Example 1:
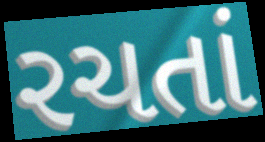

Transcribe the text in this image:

રચતાં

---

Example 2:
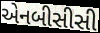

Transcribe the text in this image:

એનબીસીસી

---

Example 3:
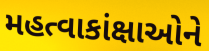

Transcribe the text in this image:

મહત્વાકાંક્ષાઓને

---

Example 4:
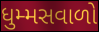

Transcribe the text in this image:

ધુમ્મસવાળો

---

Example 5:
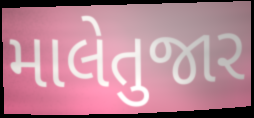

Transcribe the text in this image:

માલેતુજાર